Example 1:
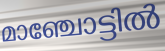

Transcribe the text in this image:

മാഞ്ചോട്ടിൽ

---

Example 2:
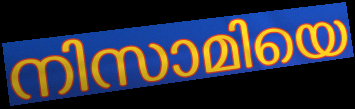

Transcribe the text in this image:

നിസാമിയെ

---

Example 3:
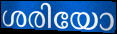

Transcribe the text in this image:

ശരിയോ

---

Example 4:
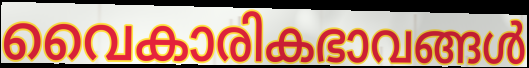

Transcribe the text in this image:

വൈകാരികഭാവങ്ങൾ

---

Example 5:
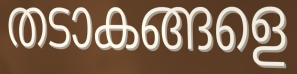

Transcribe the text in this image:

തടാകങ്ങളെ